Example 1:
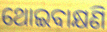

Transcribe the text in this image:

ଥୋଇବାକ୍ଷଣି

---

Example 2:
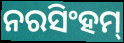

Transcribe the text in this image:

ନରସିଂହମ୍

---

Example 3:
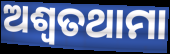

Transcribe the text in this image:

ଅଶ୍ୱତଥାମା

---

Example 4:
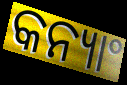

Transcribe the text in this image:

କନ୍ୟାଂ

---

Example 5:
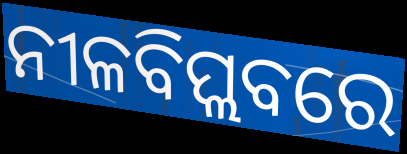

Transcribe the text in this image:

ନୀଳବିପ୍ଲବରେ